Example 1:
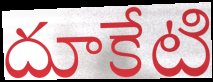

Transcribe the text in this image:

దూకేటి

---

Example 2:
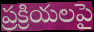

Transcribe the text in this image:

ప్రక్రియలపై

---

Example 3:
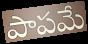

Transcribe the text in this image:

పాపమే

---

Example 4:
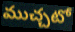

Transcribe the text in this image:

ముచ్చటో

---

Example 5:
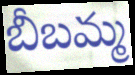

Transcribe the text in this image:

బీబమ్మ